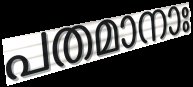
പതമാനാഃ